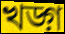
খড়্গ